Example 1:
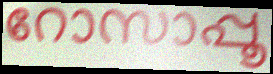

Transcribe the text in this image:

റോസാപ്പൂ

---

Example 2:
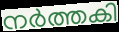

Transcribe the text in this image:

നർത്തകി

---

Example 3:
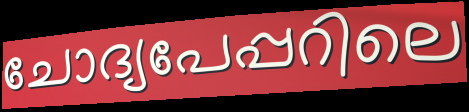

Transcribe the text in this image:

ചോദ്യപേപ്പറിലെ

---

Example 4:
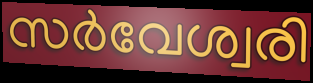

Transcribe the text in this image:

സർവേശ്വരി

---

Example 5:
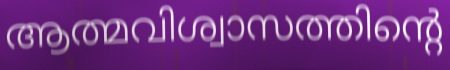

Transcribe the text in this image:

ആത്മവിശ്വാസത്തിന്റെ